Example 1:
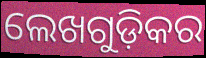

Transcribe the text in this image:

ଲେଖଗୁଡ଼ିକର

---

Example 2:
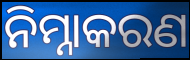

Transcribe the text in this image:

ନିମ୍ନାକରଣ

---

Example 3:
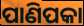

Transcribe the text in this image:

ପାଣିପକା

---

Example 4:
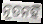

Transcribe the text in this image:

ନୂତନହିଁ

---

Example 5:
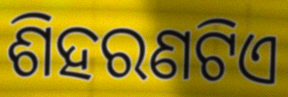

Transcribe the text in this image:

ଶିହରଣଟିଏ